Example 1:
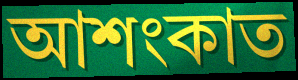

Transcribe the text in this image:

আশংকাত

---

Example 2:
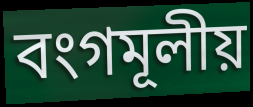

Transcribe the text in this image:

বংগমূলীয়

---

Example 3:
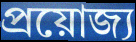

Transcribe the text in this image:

প্ৰয়োজ্য়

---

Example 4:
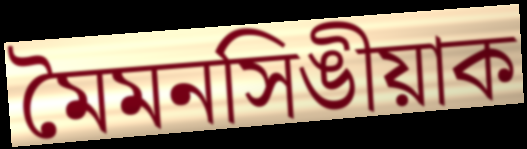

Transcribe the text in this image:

মৈমনসিঙীয়াক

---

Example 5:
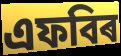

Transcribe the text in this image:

এফবিৰ